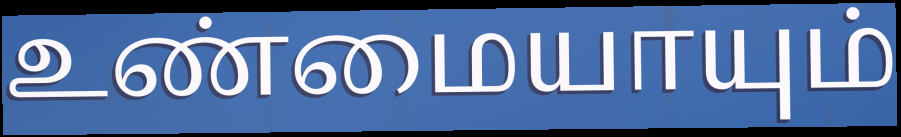
உண்மையாயும்